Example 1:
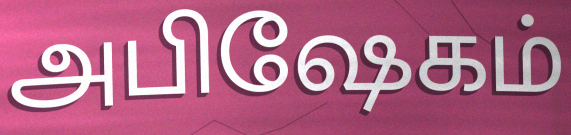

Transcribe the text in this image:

அபிஷேகம்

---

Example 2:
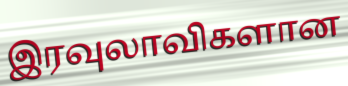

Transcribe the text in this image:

இரவுலாவிகளான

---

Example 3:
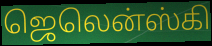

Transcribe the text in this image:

ஜெலென்ஸ்கி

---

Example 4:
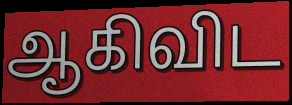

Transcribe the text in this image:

ஆகிவிட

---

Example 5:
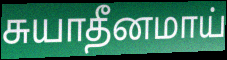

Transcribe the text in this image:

சுயாதீனமாய்